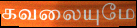
கவலையுமே